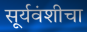
सूर्यवंशीचा